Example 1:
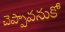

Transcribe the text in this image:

చెప్పావనుకో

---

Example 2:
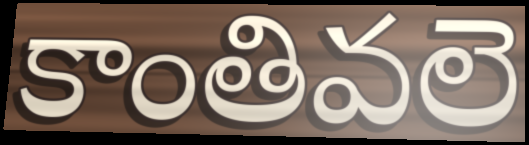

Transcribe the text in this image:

కాంతివలె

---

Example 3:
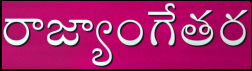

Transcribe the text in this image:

రాజ్యాంగేతర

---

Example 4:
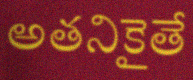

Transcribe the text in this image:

అతనికైతే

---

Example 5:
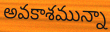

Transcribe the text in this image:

అవకాశమున్నా